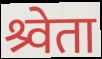
श्र्वेता